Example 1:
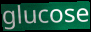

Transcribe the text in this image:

glucose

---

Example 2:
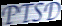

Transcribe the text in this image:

PTSD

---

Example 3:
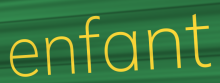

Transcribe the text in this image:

enfant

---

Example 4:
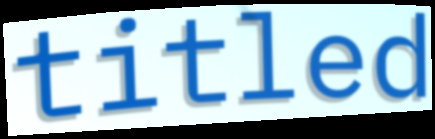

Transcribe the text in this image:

titled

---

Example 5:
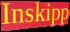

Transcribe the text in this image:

Inskipp